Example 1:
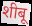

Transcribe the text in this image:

शीबू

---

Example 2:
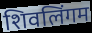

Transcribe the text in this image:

शिवलिंगम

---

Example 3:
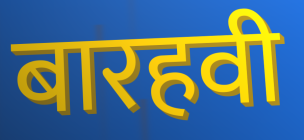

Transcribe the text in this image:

बारहवी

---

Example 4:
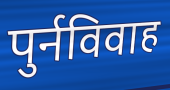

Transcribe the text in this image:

पुर्नविवाह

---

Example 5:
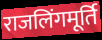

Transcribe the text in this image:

राजलिंगमूर्ति